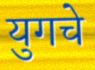
युगचे